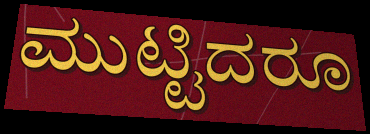
ಮುಟ್ಟಿದರೂ